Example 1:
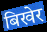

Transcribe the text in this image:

बिखेर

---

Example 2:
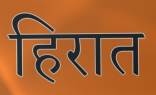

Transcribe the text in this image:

हिरात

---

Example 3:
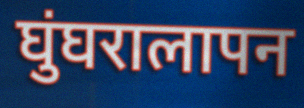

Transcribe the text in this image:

घुंघरालापन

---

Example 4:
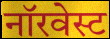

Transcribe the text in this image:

नॉरवेस्ट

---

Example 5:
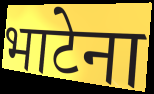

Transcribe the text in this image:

भाटेना